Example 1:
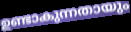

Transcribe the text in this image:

ഉണ്ടാകുന്നതായും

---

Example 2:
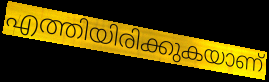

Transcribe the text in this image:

എത്തിയിരിക്കുകയാണ്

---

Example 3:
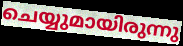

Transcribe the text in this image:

ചെയ്യുമായിരുന്നു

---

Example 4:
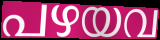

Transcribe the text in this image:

പഴയവ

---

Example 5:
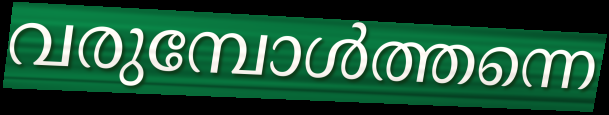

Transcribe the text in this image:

വരുമ്പോൾത്തന്നെ